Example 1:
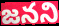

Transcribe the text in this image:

జనని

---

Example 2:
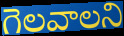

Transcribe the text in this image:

గెలవాలని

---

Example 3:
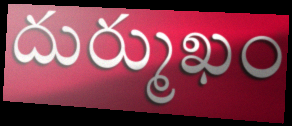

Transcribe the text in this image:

దుర్ముఖం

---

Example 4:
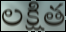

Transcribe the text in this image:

లక్షిత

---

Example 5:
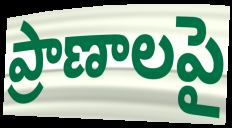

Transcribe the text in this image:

ప్రాణాలపై